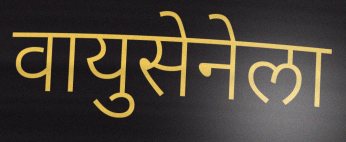
वायुसेनेला